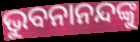
ଭୁବନାନନ୍ଦଙ୍କୁ